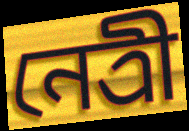
নেত্ৰী